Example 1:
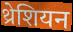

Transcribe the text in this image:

थ्रेशियन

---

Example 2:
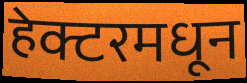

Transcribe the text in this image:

हेक्टरमधून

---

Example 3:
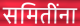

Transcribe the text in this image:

समितींना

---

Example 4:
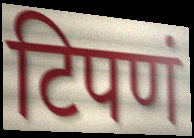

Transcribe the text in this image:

टिपणं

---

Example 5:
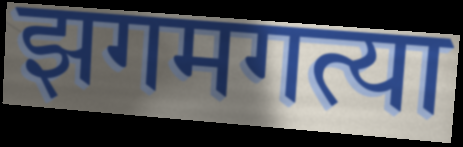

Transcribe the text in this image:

झगमगत्या